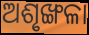
ଅଶୃଙ୍ଖଳା